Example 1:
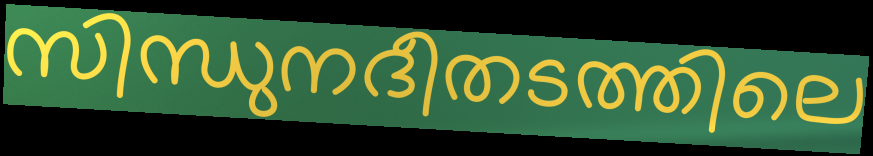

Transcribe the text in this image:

സിന്ധുനദീതടത്തിലെ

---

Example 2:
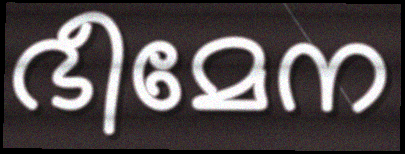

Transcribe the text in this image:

ഭീമേന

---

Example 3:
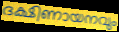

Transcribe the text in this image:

ദക്ഷിണായനവും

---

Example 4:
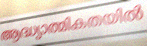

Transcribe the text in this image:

ആദ്ധ്യാത്മികതയിൽ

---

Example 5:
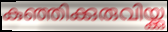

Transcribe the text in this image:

കുഞ്ഞിക്കുരുവിയ്ക്കു